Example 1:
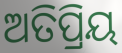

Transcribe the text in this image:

ଅତିପ୍ରିୟ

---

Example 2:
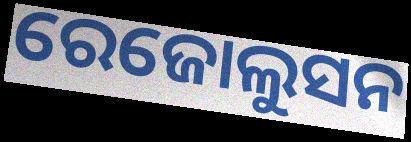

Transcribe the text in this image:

ରେଜୋଲୁସନ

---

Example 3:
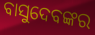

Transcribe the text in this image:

ବାସୁଦେବଙ୍କର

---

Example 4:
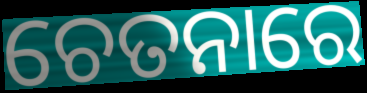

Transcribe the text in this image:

ଚେତନାରେ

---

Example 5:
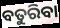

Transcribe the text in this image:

ବତୁରିବା